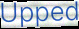
Upped